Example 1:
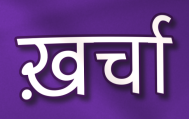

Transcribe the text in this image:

ख़र्चा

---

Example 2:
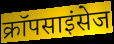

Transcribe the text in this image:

क्रॉपसाइंसेज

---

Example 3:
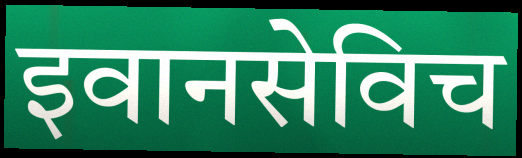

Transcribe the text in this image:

इवानसेविच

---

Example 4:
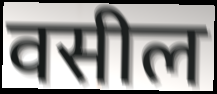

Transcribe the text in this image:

वसील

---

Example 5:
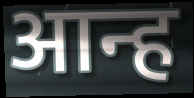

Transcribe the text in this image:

आन्ह